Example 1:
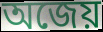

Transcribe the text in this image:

অজেয়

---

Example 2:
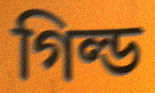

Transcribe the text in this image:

গিল্ড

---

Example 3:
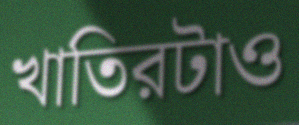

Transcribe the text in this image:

খাতিরটাও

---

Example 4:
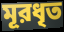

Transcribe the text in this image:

মূরধৃত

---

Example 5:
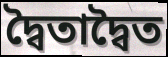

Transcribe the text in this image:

দ্বৈতাদ্বৈত